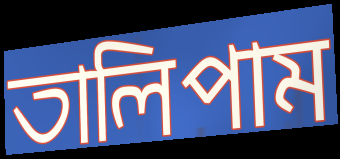
তালিপাম